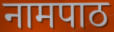
नामपाठ